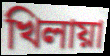
খিলায়া